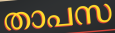
താപസ